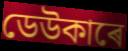
ডেউকাৰে